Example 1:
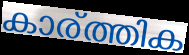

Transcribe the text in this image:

കാര്ത്തിക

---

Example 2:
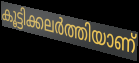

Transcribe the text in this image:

കൂട്ടിക്കലർത്തിയാണ്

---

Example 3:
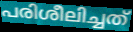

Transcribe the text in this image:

പരിശീലിച്ചത്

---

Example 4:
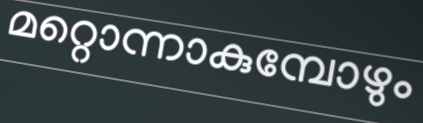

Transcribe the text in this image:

മറ്റൊന്നാകുമ്പോഴും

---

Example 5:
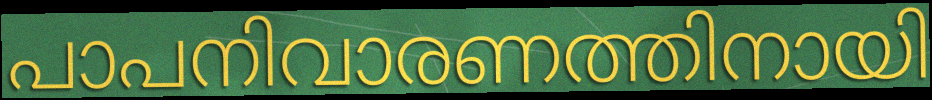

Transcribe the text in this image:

പാപനിവാരണത്തിനായി